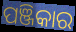
ପଞ୍ଜିକାର